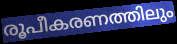
രൂപീകരണത്തിലും